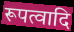
रूपत्वादि